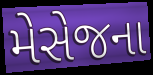
મેસેજના